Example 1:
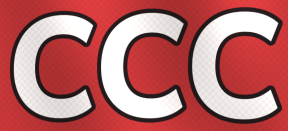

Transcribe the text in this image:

CCC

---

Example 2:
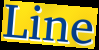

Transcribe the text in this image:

Line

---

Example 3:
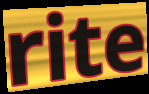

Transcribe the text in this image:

rite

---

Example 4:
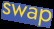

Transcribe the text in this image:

swap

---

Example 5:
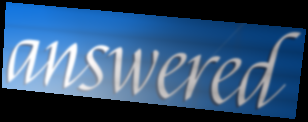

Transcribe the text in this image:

answered